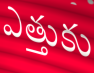
ఎత్తుకు